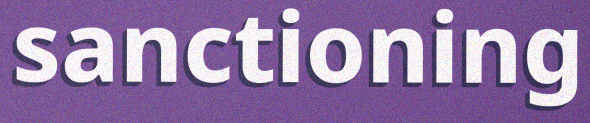
sanctioning